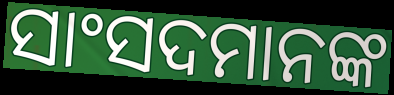
ସାଂସଦମାନଙ୍କ